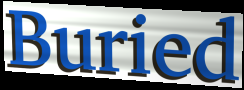
Buried